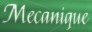
Mecanique